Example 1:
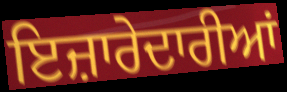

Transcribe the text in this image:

ਇਜ਼ਾਰੇਦਾਰੀਆਂ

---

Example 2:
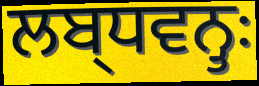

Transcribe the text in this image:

ਲਬ੍ਧਵਨ੍ਤਃ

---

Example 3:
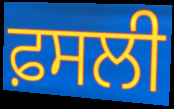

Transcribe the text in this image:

ਫ਼ਸਲੀ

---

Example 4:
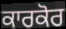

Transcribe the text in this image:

ਕਾਰਕੋਰ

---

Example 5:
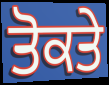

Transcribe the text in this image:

ਤੋਕਤੇ